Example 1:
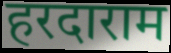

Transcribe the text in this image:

हरदाराम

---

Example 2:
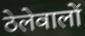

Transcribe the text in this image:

ठेलेवालों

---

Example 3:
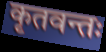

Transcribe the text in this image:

कृतवन्तः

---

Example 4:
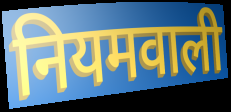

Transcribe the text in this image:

नियमवाली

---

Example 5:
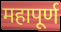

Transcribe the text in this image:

महापूर्ण